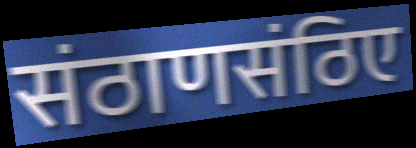
संठाणसंठिए